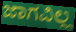
ಜಾಗವಿಲ್ಲ